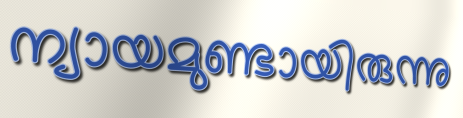
ന്യായമുണ്ടായിരുന്നു